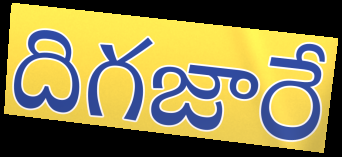
దిగజారే